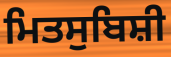
ਮਿਤਸੁਬਿਸ਼ੀ